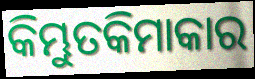
କିମ୍ଭୁତକିମାକାର